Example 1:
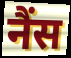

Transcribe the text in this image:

नैंस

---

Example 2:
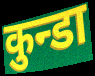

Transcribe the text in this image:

कुन्डा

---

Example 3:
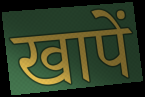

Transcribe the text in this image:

खापें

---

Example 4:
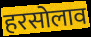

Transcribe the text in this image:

हरसोलाव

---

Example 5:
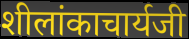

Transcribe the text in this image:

शीलांकाचार्यजी